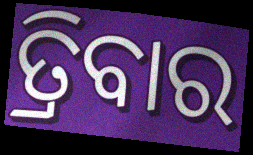
ତ୍ରିବାର